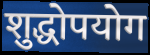
शुद्धोपयोग